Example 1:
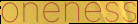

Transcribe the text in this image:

oneness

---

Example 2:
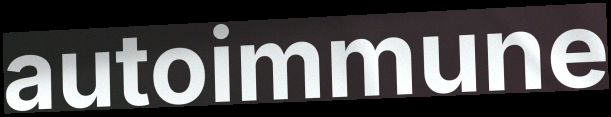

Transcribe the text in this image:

autoimmune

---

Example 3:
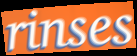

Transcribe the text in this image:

rinses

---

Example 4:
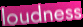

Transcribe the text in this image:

loudness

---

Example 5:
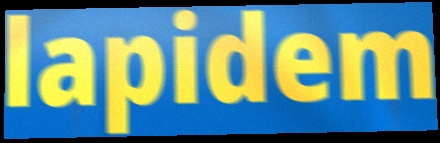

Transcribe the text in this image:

lapidem